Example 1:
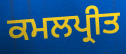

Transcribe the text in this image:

ਕਮਲਪ੍ਰੀਤ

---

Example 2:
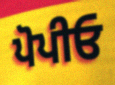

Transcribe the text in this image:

ਪੋਪੀਓ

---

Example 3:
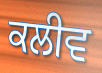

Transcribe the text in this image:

ਕਲੀਵ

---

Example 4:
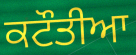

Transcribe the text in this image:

ਕਟੌਤੀਆ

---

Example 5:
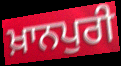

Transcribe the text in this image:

ਖ਼ਾਨਪੁਰੀ